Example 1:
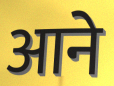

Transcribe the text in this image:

आने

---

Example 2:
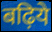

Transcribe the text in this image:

बढ़िये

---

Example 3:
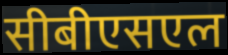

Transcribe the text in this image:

सीबीएसएल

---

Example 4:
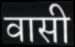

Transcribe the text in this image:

वासी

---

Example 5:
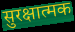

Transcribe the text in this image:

सुरक्षात्मक